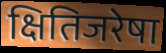
क्षितिजरेषा